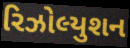
રિઝોલ્યુશન